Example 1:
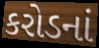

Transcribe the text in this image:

કરોડનાં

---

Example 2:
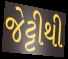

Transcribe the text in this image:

જેટ્ટીથી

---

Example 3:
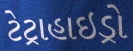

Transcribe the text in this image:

ટેટ્રાહાઇડ્રો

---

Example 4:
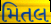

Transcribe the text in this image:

મિતલ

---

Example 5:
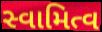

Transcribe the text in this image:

સ્વામિત્વ